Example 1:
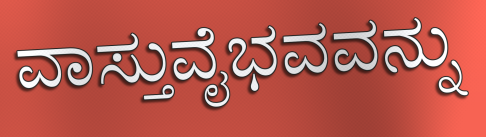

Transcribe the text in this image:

ವಾಸ್ತುವೈಭವವನ್ನು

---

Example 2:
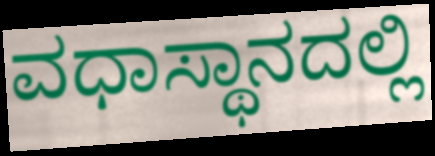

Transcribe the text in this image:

ವಧಾಸ್ಥಾನದಲ್ಲಿ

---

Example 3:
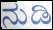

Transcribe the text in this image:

ನುಡಿ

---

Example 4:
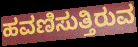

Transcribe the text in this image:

ಹವಣಿಸುತ್ತಿರುವ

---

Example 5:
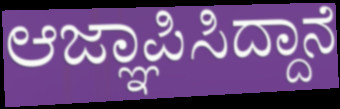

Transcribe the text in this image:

ಆಜ್ಞಾಪಿಸಿದ್ದಾನೆ